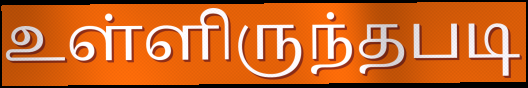
உள்ளிருந்தபடி